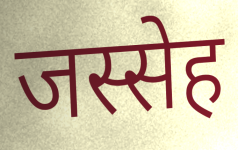
जस्सेह